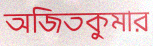
অজিতকুমার